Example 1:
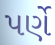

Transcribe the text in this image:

પર્ણે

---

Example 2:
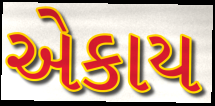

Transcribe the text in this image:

એકાય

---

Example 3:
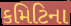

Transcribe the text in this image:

કમિટિના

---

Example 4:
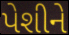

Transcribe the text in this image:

પેશીને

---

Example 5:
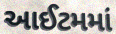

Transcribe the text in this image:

આઈટમમાં